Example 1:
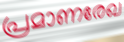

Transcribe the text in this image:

പ്രമാണരേഖ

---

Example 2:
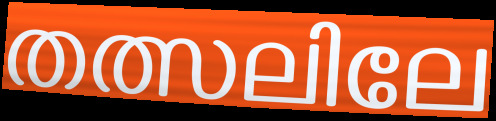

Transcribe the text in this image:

തത്സലിലേ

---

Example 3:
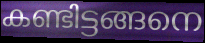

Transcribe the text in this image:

കണ്ടിട്ടങ്ങനെ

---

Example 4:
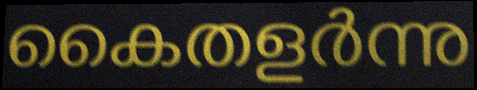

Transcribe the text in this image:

കൈതളർന്നു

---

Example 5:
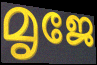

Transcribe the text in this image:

മൃജേ